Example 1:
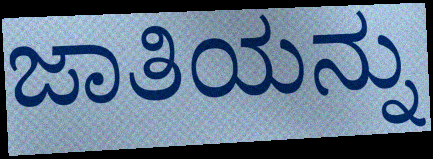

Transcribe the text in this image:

ಜಾತಿಯನ್ನು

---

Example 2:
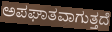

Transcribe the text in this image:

ಅಪಘಾತವಾಗುತ್ತದೆ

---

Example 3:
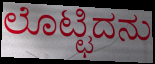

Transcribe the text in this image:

ಲೊಟ್ಟಿದನು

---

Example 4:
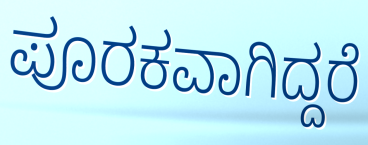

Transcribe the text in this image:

ಪೂರಕವಾಗಿದ್ದರೆ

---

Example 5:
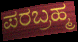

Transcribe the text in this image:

ಪರಬ್ರಹ್ಮ